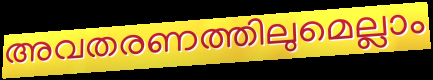
അവതരണത്തിലുമെല്ലാം